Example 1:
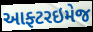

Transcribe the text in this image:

આફ્ટરઇમેજ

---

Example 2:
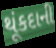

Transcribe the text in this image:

થૂંકદાની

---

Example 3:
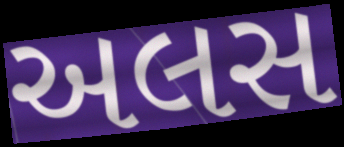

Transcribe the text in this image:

અલસ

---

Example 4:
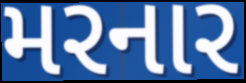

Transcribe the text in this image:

મરનાર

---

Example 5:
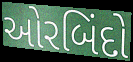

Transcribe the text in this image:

ઓરબિંદો